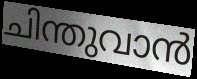
ചിന്തുവാൻ